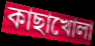
কাছাখোলা